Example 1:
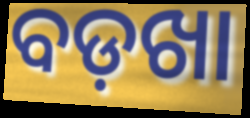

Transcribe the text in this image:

ବଡ଼ଖା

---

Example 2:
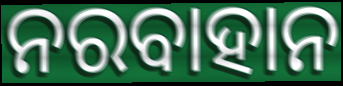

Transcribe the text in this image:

ନରବାହାନ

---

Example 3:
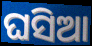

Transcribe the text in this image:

ଘସିଆ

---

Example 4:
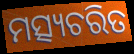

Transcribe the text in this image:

ମତ୍ସ୍ୟଚରିତ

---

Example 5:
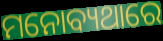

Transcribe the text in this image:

ମନୋବ୍ୟଥାରେ